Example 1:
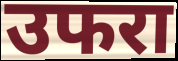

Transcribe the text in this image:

उफरा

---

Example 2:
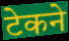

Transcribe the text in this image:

टेकने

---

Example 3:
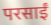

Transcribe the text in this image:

परसाईं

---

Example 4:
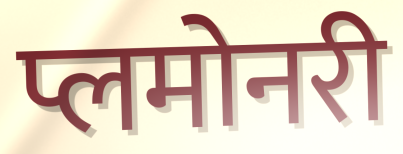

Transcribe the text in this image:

प्लमोनरी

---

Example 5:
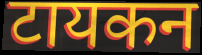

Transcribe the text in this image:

टायकन